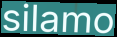
silamo